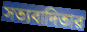
সত্যবাদিতার